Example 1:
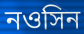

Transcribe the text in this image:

নওসিন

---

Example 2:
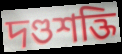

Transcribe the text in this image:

দণ্ডশক্তি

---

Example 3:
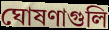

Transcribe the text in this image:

ঘোষণাগুলি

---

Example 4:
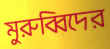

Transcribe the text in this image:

মুরুব্বিদের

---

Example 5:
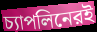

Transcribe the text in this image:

চ্যাপলিনেরই